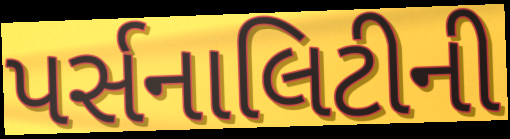
પર્સનાલિટીની